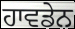
ਹਾਵਡੇਨ